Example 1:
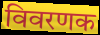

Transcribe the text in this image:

विवरणक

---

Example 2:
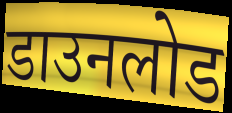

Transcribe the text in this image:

डाउनलोड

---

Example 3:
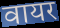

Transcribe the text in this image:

वायर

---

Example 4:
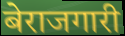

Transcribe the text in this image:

बेराजगारी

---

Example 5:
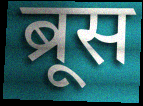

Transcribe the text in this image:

ब्रूस